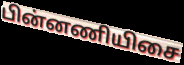
பின்னணியிசை